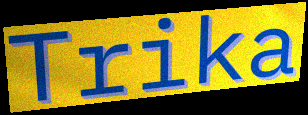
Trika